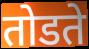
तोडते